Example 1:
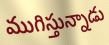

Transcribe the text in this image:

ముగిస్తున్నాడు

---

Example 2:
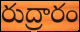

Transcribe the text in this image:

రుద్రారం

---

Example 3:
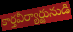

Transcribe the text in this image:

కార్తవీర్యార్జునుడి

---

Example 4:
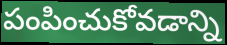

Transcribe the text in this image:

పంపించుకోవడాన్ని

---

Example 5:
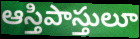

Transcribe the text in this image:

ఆస్తిపాస్తులూ